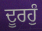
ਦੂਰਹੁੰ